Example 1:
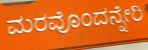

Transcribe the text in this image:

ಮರವೊಂದನ್ನೇರಿ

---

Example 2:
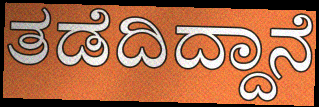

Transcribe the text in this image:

ತಡೆದಿದ್ದಾನೆ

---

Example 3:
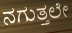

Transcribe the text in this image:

ನಗುತ್ತಲೇ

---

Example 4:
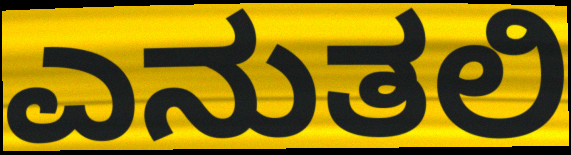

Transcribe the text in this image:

ಎನುತಲಿ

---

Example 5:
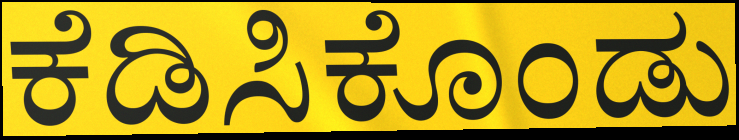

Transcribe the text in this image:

ಕೆಡಿಸಿಕೊಂಡು